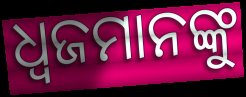
ଧ୍ୱଜମାନଙ୍କୁ